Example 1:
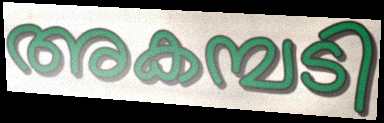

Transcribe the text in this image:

അകമ്പടി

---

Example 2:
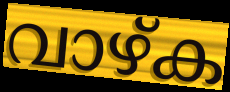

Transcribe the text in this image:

വാഴ്ക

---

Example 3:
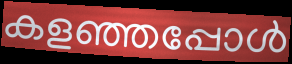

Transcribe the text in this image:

കളഞ്ഞപ്പോൾ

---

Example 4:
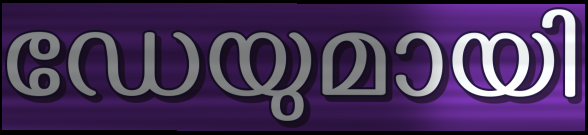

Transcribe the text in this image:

ഡേയുമായി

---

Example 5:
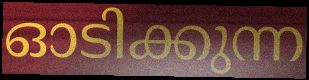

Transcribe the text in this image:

ഓടിക്കുന്ന